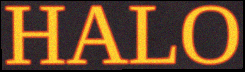
HALO